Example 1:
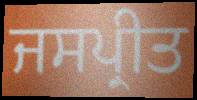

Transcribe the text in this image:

ਜਸਪ੍ਰੀਤ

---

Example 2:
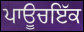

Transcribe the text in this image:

ਪਾਊਚਇੱਕ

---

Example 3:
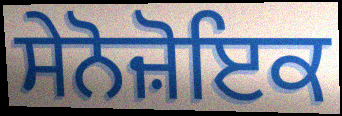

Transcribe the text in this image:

ਸੇਨੋਜ਼ੋਇਕ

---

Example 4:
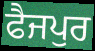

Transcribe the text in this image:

ਫੈਜਪੁਰ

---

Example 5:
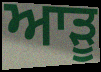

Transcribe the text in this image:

ਆੜੂ